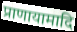
प्राणायामादि